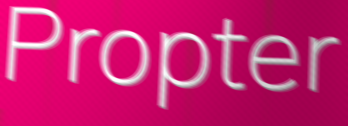
Propter